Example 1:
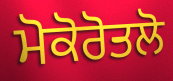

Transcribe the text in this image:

ਮੋਕੋਰੋਤਲੋ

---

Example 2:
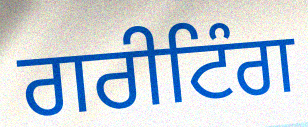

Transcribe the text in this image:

ਗਰੀਟਿੰਗ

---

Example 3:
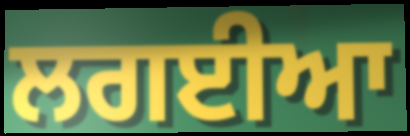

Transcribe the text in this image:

ਲਗਈਆ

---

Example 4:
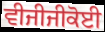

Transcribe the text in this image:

ਵੀਜੀਜੀਕੋਈ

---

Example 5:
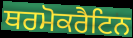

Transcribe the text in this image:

ਥਰਮੋਕਰੈਟਿਨ